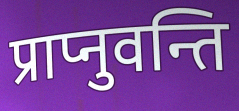
प्राप्नुवन्ति